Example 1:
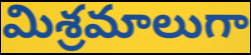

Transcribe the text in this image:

మిశ్రమాలుగా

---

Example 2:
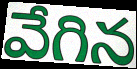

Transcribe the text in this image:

వేగిన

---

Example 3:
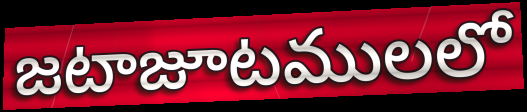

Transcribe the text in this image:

జటాజూటములలో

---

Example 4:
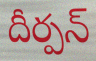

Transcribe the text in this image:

దీర్పన్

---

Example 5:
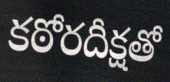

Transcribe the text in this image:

కఠోరదీక్షతో